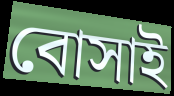
বোসাই